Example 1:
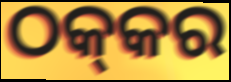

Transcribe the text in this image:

ଠକ୍‍କର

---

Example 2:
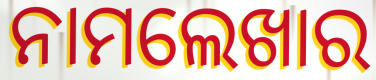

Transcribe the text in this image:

ନାମଲେଖାର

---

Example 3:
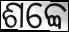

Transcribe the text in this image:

ଶବ୍ବେ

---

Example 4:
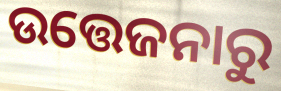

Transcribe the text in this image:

ଉତ୍ତେଜନାରୁ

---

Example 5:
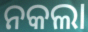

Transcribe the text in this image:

ନକଲା